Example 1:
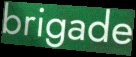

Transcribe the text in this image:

brigade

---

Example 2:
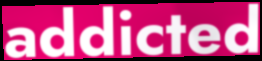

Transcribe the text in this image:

addicted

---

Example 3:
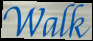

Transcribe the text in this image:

Walk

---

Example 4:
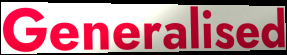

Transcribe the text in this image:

Generalised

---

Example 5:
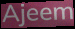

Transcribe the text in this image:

Ajeem